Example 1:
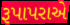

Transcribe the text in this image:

રૂપાપરાએ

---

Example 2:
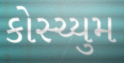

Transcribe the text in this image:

કોસ્ચ્યુમ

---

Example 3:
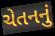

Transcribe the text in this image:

ચેતનનું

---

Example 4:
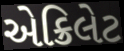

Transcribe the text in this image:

એક્રિલેટ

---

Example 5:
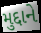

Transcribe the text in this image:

મુદ્દાને